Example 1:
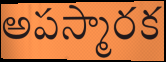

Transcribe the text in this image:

అపస్మారక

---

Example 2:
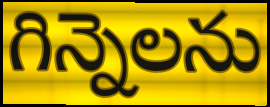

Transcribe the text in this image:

గిన్నెలను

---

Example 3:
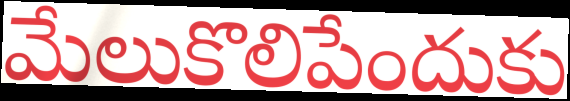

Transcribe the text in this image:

మేలుకొలిపేందుకు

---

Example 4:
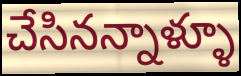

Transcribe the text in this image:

చేసినన్నాళ్ళూ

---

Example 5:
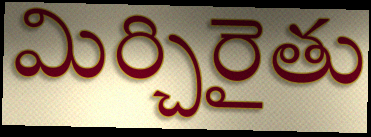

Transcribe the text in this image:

మిర్చిరైతు